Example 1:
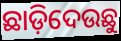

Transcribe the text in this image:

ଛାଡ଼ିଦେଉଛୁ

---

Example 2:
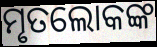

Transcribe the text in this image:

ମୃତଲୋକଙ୍କ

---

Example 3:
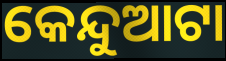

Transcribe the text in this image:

କେନ୍ଦୁଆଟା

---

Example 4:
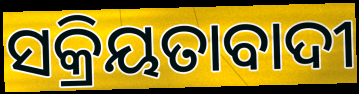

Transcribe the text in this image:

ସକ୍ରିୟତାବାଦୀ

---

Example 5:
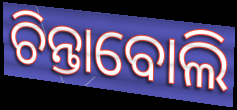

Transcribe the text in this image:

ଚିନ୍ତାବୋଲି